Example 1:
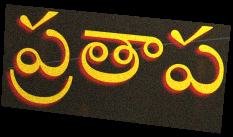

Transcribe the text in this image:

ప్రతాప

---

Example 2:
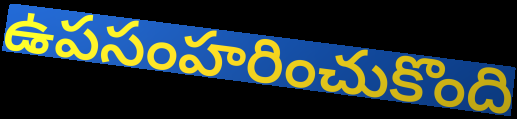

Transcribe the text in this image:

ఉపసంహరించుకొంది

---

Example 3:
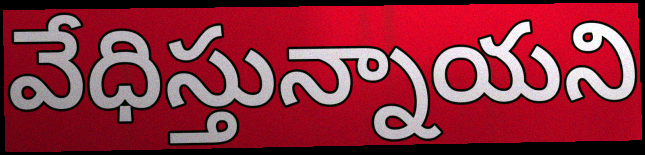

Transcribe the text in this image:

వేధిస్తున్నాయని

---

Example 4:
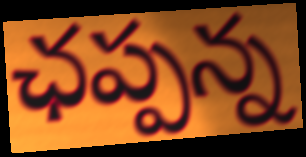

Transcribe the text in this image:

ఛప్పన్న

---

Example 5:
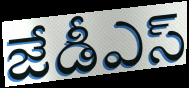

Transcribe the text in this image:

జేడీఎస్